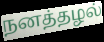
நனத்தழல்